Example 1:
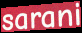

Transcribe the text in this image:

sarani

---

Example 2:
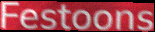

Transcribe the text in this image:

Festoons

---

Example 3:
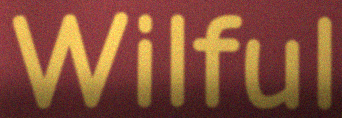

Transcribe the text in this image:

Wilful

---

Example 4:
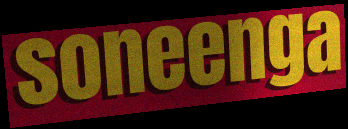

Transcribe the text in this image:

soneenga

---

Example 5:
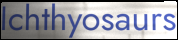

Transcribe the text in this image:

Ichthyosaurs